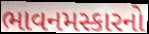
ભાવનમસ્કારનો